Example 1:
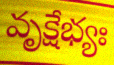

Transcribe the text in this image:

వృక్షేభ్యః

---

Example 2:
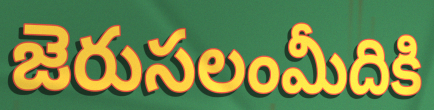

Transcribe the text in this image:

జెరుసలంమీదికి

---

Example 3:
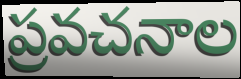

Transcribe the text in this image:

ప్రవచనాల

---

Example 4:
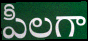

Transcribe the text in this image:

పీలగా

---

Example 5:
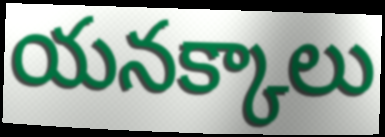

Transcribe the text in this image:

యనక్కాలు